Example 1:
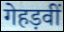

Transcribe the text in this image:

गेहड़वीं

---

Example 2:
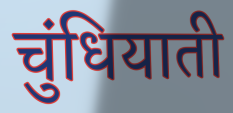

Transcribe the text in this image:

चुंधियाती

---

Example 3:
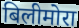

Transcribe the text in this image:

बिलीमोरा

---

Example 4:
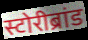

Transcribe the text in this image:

स्टोरीब्रांड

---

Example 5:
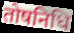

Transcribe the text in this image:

तोषनिधि